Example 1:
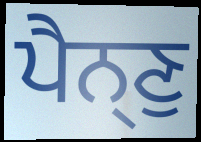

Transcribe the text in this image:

ਪੈਨ੍ਣੁ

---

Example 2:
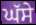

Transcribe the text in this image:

ਘੱਸੇ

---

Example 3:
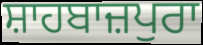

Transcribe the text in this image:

ਸ਼ਾਹਬਾਜ਼ਪੁਰਾ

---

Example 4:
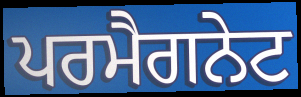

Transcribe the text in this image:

ਪਰਮੈਗਨੇਟ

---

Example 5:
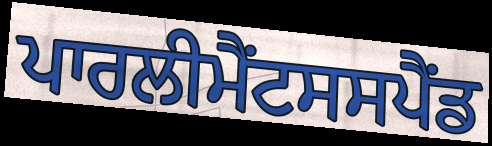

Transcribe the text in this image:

ਪਾਰਲੀਮੈਂਟਸਸਪੈਂਡ